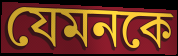
যেমনকে